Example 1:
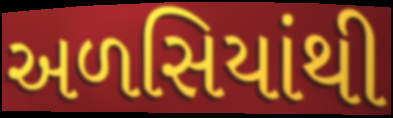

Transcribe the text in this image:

અળસિયાંથી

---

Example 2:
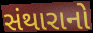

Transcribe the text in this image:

સંથારાનો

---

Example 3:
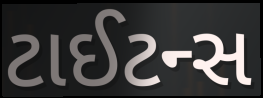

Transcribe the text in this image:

ટાઈટન્સ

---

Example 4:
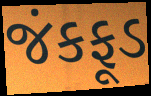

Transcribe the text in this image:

જંકફૂડ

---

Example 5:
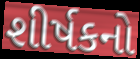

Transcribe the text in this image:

શીર્ષકનો